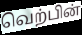
வெற்பின்